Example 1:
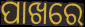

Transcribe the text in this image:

ପାଖରେ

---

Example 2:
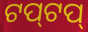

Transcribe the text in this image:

ଟପ୍‌ଟପ୍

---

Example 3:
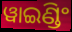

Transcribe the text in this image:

ୱାଇଣ୍ଡିଂ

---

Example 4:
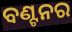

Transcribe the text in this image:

ବଣ୍ଟନର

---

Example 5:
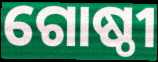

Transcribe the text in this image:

ଗୋଷ୍ଠୀ